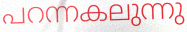
പറന്നകലുന്നു